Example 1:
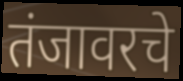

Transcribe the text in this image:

तंजावरचे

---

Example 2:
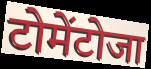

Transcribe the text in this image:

टोमेंटोजा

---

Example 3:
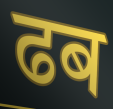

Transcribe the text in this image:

ढब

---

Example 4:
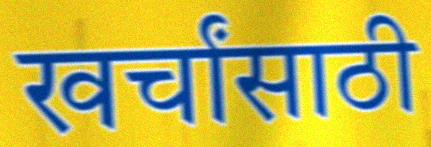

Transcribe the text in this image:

खर्चांसाठी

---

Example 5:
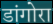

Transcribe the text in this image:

डांगोरा